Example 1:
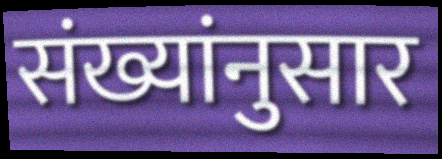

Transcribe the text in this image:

संख्यांनुसार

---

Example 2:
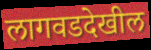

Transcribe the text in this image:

लागवडदेखील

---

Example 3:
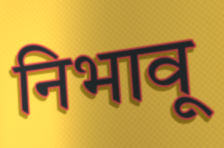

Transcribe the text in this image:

निभावू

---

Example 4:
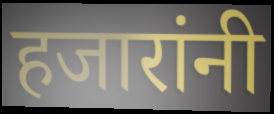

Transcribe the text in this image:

हजारांनी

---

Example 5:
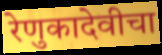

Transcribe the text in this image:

रेणुकादेवीचा